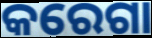
କରେଗା